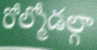
రోల్మోడల్గా